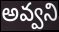
అవ్వని